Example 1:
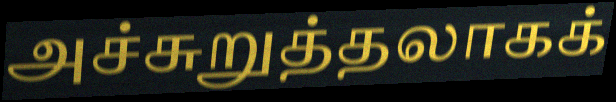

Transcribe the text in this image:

அச்சுறுத்தலாகக்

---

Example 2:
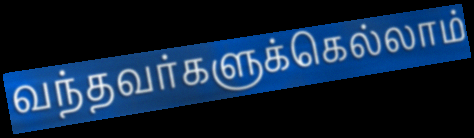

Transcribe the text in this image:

வந்தவர்களுக்கெல்லாம்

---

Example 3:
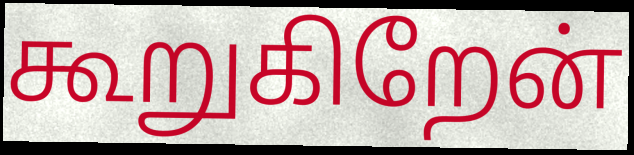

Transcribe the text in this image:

கூறுகிறேன்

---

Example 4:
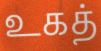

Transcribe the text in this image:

உகத்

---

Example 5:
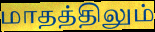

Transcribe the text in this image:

மாதத்திலும்